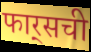
फार्सची